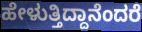
ಹೇಳುತ್ತಿದ್ದಾನೆಂದರೆ